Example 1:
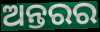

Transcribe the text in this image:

ଅନ୍ତରର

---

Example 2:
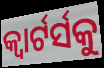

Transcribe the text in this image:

କ୍ୱାର୍ଟର୍ସକୁ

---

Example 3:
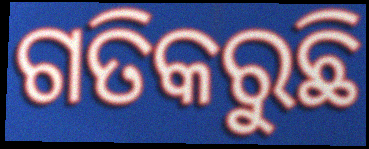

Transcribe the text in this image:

ଗତିକରୁଛି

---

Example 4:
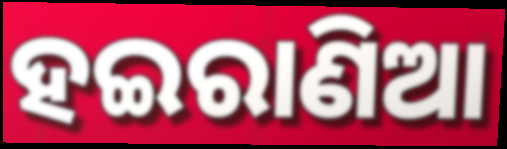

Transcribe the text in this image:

ହଇରାଣିଆ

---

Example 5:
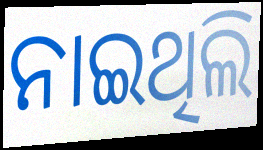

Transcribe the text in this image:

ନାଇଥିଲି